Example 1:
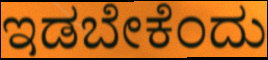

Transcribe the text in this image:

ಇಡಬೇಕೆಂದು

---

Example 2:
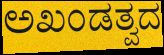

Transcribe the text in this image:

ಅಖಂಡತ್ವದ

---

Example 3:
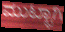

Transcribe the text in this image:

ಮುಟ್ಟಾಗಿ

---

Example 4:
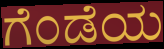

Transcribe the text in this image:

ಗೆಂಡೆಯ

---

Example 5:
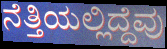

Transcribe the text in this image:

ನೆತ್ತಿಯಲ್ಲಿದ್ದೆವು